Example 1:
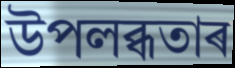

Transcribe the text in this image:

উপলব্ধতাৰ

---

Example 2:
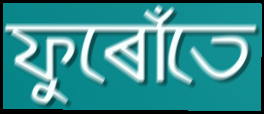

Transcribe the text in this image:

ফুৰোঁতে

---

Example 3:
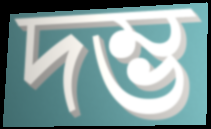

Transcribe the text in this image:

দম্ভ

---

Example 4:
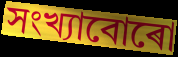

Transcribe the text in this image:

সংখ্যাবোৰো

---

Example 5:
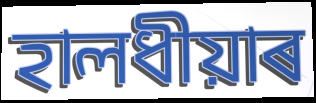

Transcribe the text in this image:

হালধীয়াৰ